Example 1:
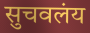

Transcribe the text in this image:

सुचवलंय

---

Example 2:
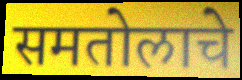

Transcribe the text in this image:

समतोलाचे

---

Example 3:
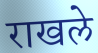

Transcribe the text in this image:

राखले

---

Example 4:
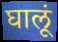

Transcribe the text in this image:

घालूं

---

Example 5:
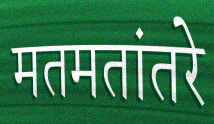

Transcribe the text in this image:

मतमतांतरे